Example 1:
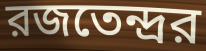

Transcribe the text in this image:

রজতেন্দ্রর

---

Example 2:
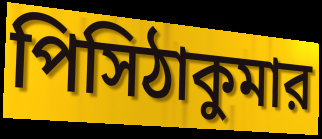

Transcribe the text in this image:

পিসিঠাকুমার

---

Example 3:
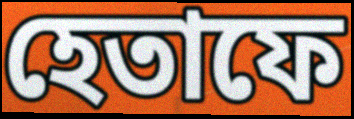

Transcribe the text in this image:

হেতাফে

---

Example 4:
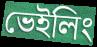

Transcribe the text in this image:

ভেইলিং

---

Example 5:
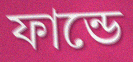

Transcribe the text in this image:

ফান্ডে